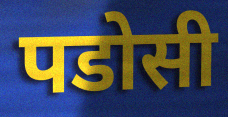
पडोसी